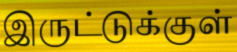
இருட்டுக்குள்